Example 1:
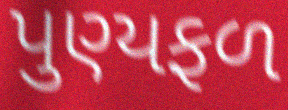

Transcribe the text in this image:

પુણ્યફળ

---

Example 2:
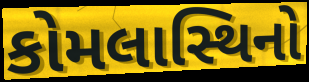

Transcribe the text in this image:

કોમલાસ્થિનો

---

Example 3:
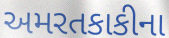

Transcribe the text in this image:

અમરતકાકીના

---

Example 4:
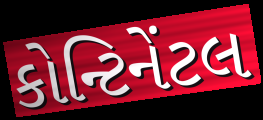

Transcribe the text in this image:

કોન્ટિનેંટલ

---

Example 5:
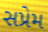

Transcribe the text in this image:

સપ્રેમ